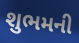
શુભમની